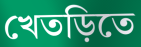
খেতড়িতে